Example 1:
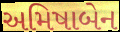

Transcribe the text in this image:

અમિષાબેન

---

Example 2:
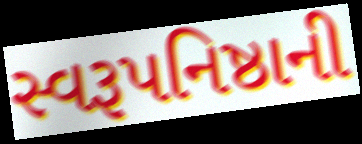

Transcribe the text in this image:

સ્વરૂપનિષ્ઠાની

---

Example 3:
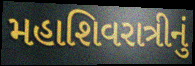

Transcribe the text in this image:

મહાશિવરાત્રીનું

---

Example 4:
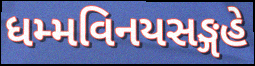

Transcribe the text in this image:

ધમ્મવિનયસઙ્ગહે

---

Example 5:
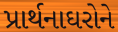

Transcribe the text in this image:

પ્રાર્થનાઘરોને